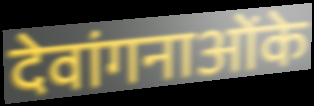
देवांगनाओंके